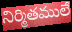
నిర్మితములే